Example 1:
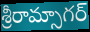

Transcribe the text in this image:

శ్రీరామ్సాగర్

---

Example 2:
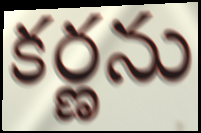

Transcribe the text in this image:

కర్ణను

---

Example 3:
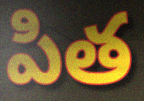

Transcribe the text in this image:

పిత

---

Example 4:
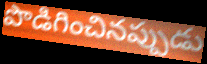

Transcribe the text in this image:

పొడిగించినప్పుడు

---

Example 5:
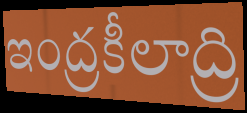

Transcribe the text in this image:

ఇంద్రకీలాద్రి